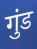
गुंड